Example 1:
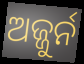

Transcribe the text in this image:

ଅଜ୍ଜୁର୍ନ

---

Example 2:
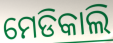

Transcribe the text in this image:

ମେଡିକାଲି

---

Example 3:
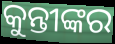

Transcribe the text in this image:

କୁନ୍ତୀଙ୍କର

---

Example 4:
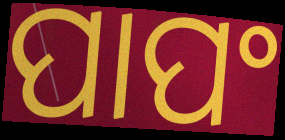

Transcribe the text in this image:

ପାପଂ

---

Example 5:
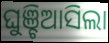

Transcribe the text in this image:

ଘୁଞ୍ଚିଆସିଲା